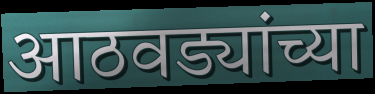
आठवड्यांच्या